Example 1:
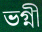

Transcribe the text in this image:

ভগ্নী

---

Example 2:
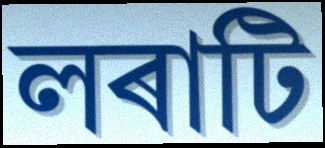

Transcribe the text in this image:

লৰাটি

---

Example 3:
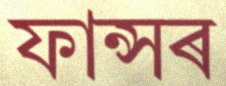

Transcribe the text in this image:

ফান্সৰ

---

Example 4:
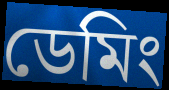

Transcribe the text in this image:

ডেমিং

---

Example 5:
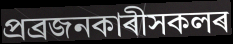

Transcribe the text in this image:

প্ৰব্ৰজনকাৰীসকলৰ